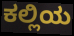
ಕಲ್ಲಿಯ